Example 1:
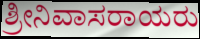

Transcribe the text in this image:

ಶ್ರೀನಿವಾಸರಾಯರು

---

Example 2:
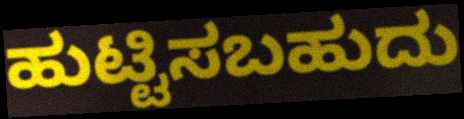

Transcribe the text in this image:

ಹುಟ್ಟಿಸಬಹುದು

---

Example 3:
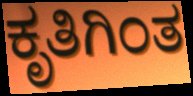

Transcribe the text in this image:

ಕೃತಿಗಿಂತ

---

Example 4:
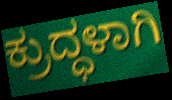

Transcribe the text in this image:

ಕ್ರುದ್ಧಳಾಗಿ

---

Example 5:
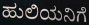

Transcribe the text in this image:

ಹುಲಿಯನಿಗೆ